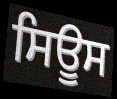
ਸਿਊਸ